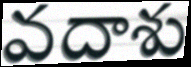
వదాశు